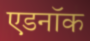
एडनॉक